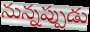
నున్నప్పుడు